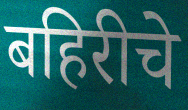
बहिरीचे